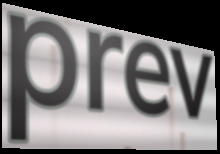
prev